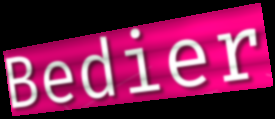
Bedier